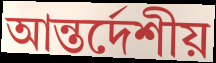
আন্তর্দেশীয়